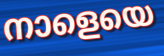
നാളെയെ